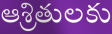
ఆశ్రితులకు